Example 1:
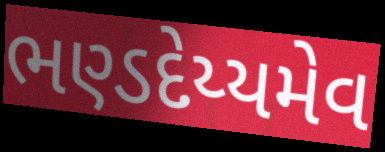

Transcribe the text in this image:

ભણ્ડદેય્યમેવ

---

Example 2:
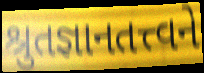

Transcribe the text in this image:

શ્રુતજ્ઞાનતત્ત્વને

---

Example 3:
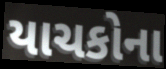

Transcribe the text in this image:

યાચકોના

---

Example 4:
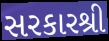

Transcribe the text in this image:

સરકારશ્રી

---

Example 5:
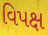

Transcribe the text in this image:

વિપક્ષ